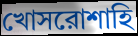
খোসরোশাহি